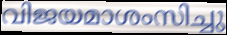
വിജയമാശംസിച്ചു